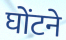
घोंटने